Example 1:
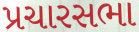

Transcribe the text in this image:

પ્રચારસભા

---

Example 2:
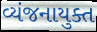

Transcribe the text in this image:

વ્યંજનાયુક્ત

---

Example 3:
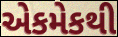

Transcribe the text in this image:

એકમેકથી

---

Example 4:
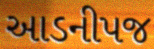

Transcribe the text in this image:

આડનીપજ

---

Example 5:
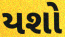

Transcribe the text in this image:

યશો